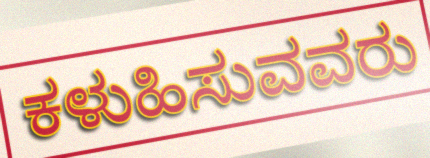
ಕಳುಹಿಸುವವರು